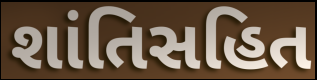
શાંતિસહિત